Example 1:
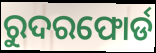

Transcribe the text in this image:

ରୁଦରଫୋର୍ଡ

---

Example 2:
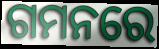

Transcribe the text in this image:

ଗମନରେ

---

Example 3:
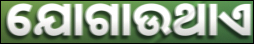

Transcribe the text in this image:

ଯୋଗାଉଥାଏ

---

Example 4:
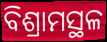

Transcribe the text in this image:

ବିଶ୍ରାମସ୍ଥଳ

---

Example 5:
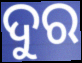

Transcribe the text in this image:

ଦୁର